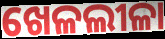
ଖେଳଲୀଳା